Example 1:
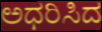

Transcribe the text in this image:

ಅಧರಿಸಿದ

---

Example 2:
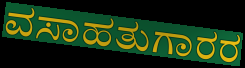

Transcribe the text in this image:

ವಸಾಹತುಗಾರರ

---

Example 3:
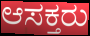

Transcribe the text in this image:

ಆಸಕ್ತರು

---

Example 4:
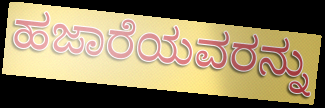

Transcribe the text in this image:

ಹಜಾರೆಯವರನ್ನು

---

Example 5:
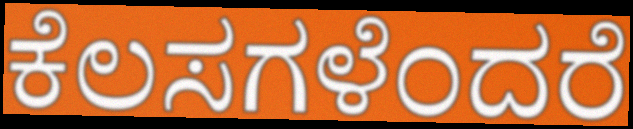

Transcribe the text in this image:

ಕೆಲಸಗಳೆಂದರೆ